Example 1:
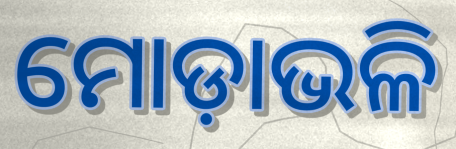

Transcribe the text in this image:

ମୋଡ଼ାଭଳି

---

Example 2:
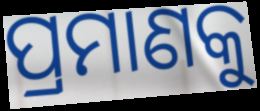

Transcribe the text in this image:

ପ୍ରମାଣକୁ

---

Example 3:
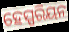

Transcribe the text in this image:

ହେସ୍ପରିୟନ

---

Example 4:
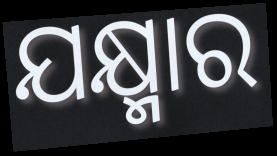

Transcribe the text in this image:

ଯକ୍ଷ୍ମାର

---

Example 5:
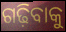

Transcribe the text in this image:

ଗଢ଼ିବାକୁ